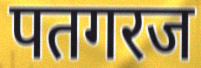
पतगरज